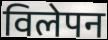
विलेपन